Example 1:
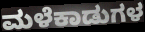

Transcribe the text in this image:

ಮಳೆಕಾಡುಗಳ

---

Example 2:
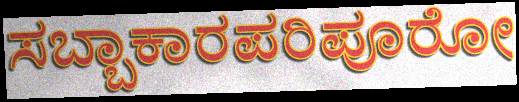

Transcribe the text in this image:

ಸಬ್ಬಾಕಾರಪರಿಪೂರೋ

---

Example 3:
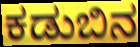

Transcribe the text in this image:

ಕಡುಬಿನ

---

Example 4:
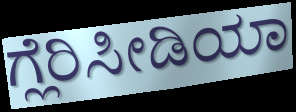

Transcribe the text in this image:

ಗ್ಲೆರಿಸೀಡಿಯಾ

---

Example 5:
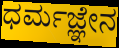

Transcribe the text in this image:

ಧರ್ಮಜ್ಞೇನ